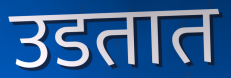
उडतात